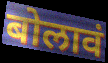
बोलावं